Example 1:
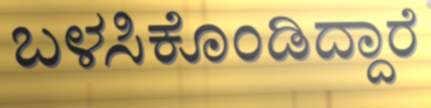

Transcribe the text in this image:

ಬಳಸಿಕೊಂಡಿದ್ದಾರೆ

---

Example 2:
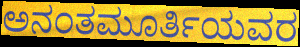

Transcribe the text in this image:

ಅನಂತಮೂರ್ತಿಯವರ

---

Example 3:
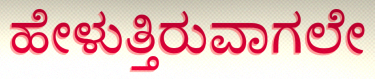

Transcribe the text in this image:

ಹೇಳುತ್ತಿರುವಾಗಲೇ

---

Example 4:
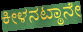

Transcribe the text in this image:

ಕೀಳನಟ್ಠಾನೇ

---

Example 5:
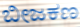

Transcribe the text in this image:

ಬೀಜಕಣ